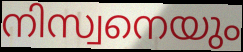
നിസ്വനെയും